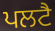
ਪਲਟੈ